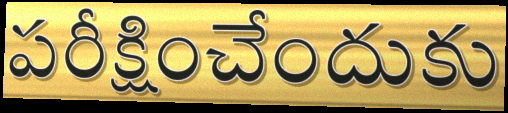
పరీక్షించేందుకు